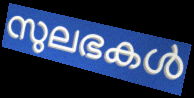
സുലഭകൾ